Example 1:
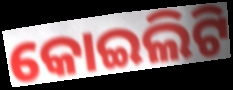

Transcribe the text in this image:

କୋଇଲିଟି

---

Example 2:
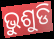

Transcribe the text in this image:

ଭୁଶୁଡି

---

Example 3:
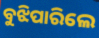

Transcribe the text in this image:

ବୁଝିପାରିଲେ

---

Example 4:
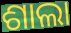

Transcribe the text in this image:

ଶାଲା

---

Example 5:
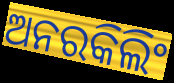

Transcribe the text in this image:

ଅନରକିଲିଂ